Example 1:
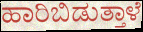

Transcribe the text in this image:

ಹಾರಿಬಿಡುತ್ತಾಳೆ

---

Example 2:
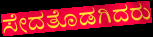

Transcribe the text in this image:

ಸೇದತೊಡಗಿದರು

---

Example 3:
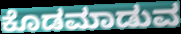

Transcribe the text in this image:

ಕೊಡಮಾಡುವ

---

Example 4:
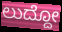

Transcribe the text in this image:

ಲುದ್ದೋ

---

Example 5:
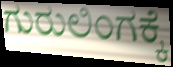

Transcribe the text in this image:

ಗುರುಲಿಂಗಕ್ಕೆ